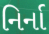
નિર્ના